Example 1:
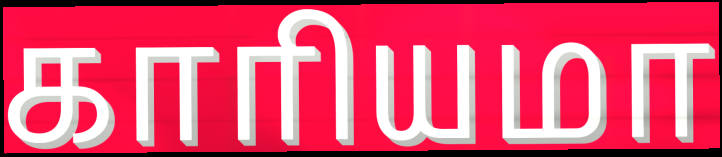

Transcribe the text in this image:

காரியமா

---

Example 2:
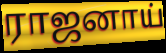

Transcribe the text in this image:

ராஜனாய்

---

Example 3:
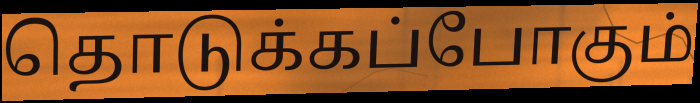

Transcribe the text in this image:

தொடுக்கப்போகும்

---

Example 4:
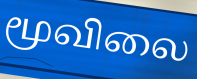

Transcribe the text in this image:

மூவிலை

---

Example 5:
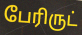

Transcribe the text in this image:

பேரிருட்